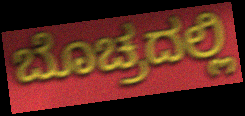
ಬೊಚ್ರದಲ್ಲಿ